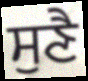
ਸੁਣੈ